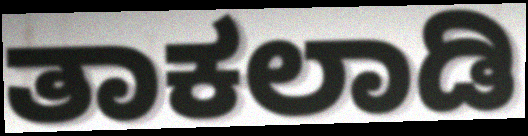
ತಾಕಲಾಡಿ